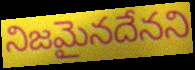
నిజమైనదేనని